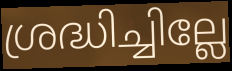
ശ്രദ്ധിച്ചില്ലേ